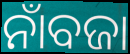
ନାଁବଜା